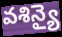
వశిన్యై